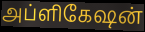
அப்ளிகேஷன்